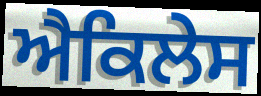
ਐਕਿਲੇਸ